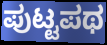
ಪುಟ್ಟಪಥ